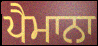
ਪੈਮਾਨਾ